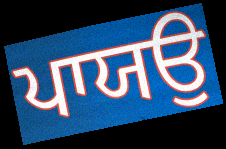
ਪਾਯਉ